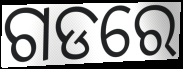
ଗଡରେ